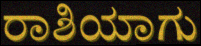
ರಾಶಿಯಾಗು